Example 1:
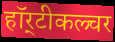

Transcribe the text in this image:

हॉर्टीकल्चर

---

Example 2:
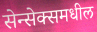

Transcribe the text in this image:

सेन्सेक्समधील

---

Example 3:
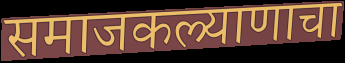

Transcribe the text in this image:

समाजकल्याणाचा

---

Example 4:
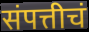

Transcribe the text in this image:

संपत्तीचं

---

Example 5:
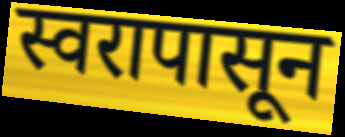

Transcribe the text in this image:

स्वरापासून